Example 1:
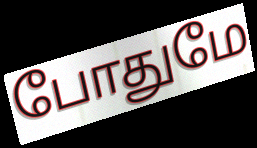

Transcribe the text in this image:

போதுமே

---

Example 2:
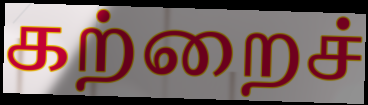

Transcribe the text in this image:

கற்றைச்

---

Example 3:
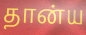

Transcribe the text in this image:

தான்ய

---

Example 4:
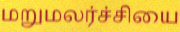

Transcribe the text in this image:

மறுமலர்ச்சியை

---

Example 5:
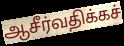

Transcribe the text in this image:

ஆசீர்வதிக்கச்